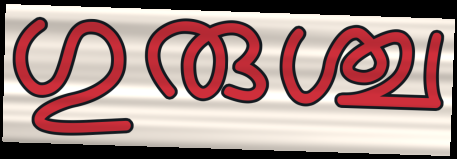
ഗുരുശ്ച